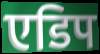
एडिप